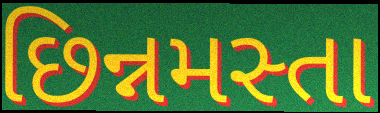
છિન્નમસ્તા